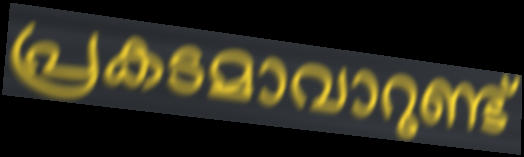
പ്രകടമാവാറുണ്ട്